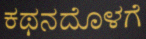
ಕಥನದೊಳಗೆ